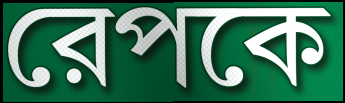
রেপকে